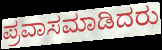
ಪ್ರವಾಸಮಾಡಿದರು